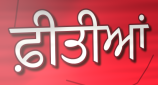
ਫ਼ੀਤੀਆਂ